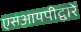
एसआयपीद्वारे